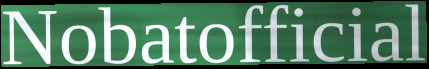
Nobatofficial